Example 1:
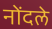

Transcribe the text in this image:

नोंदले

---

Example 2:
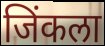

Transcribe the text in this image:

जिंकला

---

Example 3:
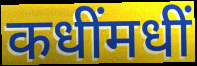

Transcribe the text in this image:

कधींमधीं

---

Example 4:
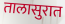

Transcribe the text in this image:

तालासुरात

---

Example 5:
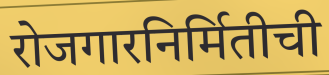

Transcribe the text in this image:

रोजगारनिर्मितीची